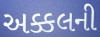
અક્કલની